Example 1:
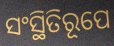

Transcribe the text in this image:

ସଂସ୍ଥିତିରୂପେ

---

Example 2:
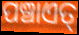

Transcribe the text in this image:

ପଞ୍ଚାଏତ୍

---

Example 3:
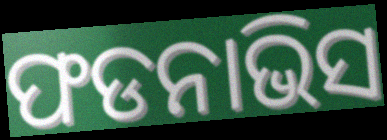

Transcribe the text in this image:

ଫଡନାଭିସ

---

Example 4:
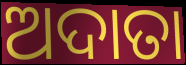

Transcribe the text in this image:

ଅଦାତା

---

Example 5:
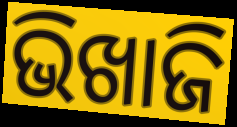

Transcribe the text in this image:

ଭିଖାଜି